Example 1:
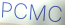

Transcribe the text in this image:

PCMC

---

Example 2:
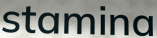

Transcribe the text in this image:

stamina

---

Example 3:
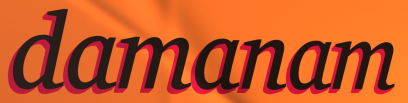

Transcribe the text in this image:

damanam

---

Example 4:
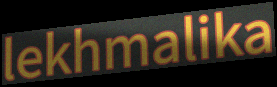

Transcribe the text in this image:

lekhmalika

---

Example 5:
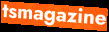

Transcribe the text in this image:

tsmagazine